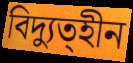
বিদ্যুত্হীন